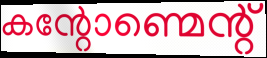
കന്റോണ്മെന്റ്